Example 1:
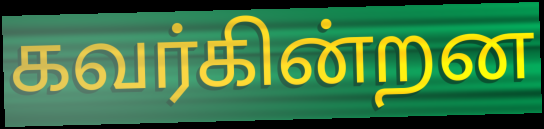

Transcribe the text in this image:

கவர்கின்றன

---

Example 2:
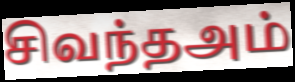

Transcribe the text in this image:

சிவந்தஅம்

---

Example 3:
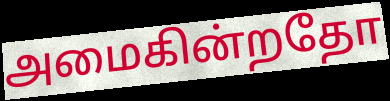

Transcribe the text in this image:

அமைகின்றதோ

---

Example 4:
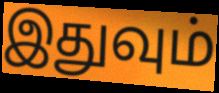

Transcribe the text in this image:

இதுவும்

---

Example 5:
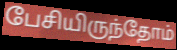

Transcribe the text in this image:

பேசியிருந்தோம்